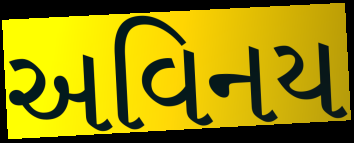
અવિનય